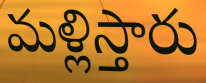
మళ్లిస్తారు